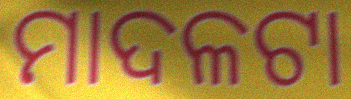
ମାଦଳଟା